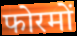
फोरमों